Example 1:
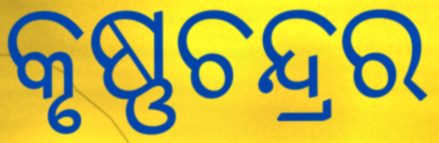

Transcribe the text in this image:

କୃଷ୍ଣଚନ୍ଦ୍ରର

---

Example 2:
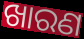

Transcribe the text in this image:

ଖାରଣ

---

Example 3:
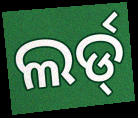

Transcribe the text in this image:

ଲର୍ଡ୍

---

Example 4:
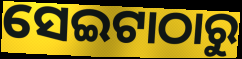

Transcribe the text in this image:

ସେଇଟାଠାରୁ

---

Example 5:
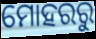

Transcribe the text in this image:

ମୋହରରୁ